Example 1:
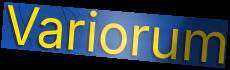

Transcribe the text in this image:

Variorum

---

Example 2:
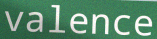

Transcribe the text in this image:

valence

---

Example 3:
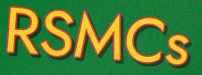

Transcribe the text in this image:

RSMCs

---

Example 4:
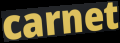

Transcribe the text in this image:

carnet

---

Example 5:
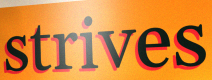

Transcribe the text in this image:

strives